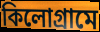
কিলোগ্রামে